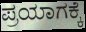
ಪ್ರಯಾಗಕ್ಕೆ